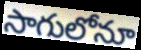
సాగులోనూ